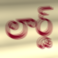
లార్డ్